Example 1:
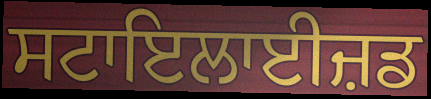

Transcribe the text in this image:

ਸਟਾਇਲਾਈਜ਼ਡ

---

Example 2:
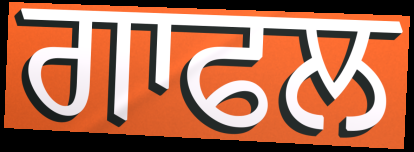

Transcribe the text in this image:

ਗਾਫਲ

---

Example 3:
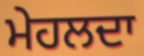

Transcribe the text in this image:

ਮੇਹਲਦਾ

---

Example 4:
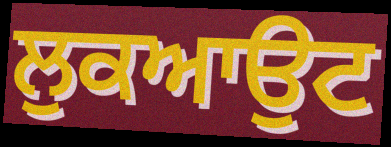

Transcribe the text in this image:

ਲੁਕਆਉਟ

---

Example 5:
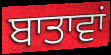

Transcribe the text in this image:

ਬਾਤਾਵਾਂ